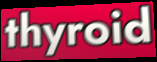
thyroid